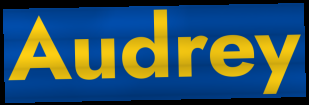
Audrey